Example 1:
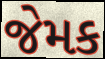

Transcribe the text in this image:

જેમક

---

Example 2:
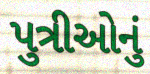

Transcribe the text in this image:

પુત્રીઓનું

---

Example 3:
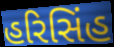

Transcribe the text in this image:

હરિસિંહ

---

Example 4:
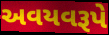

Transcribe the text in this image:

અવયવરૂપે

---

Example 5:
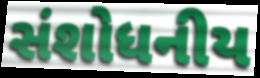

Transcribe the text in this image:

સંશોધનીય